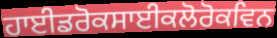
ਹਾਈਡਰੋਕਸਾਈਕਲੋਰੋਕਵਿਨ